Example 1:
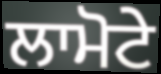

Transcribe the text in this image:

ਲਾਮੋਟੇ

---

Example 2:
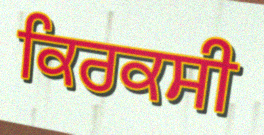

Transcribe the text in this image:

ਕਿਰਕਸੀ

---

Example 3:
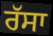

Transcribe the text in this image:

ਰੱਸਾ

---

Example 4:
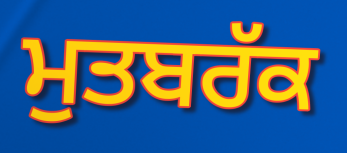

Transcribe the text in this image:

ਮੁਤਬਰੱਕ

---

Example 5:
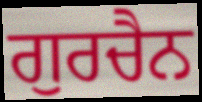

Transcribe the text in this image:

ਗੁਰਚੈਨ